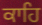
ਕਾਹਿ